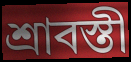
শ্রাবস্তী